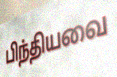
பிந்தியவை